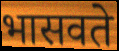
भासवते